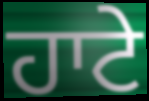
ਹਾਟੇ